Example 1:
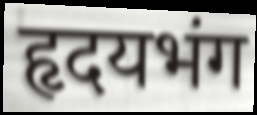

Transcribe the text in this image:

हृदयभंग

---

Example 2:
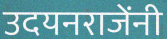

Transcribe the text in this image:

उदयनराजेंनी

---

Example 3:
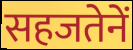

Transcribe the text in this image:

सहजतेनें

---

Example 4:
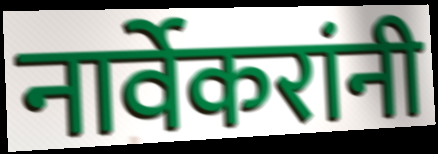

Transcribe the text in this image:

नार्वेकरांनी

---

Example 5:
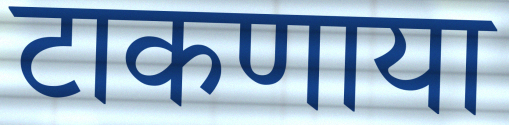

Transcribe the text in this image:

टाकणाया